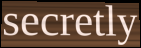
secretly